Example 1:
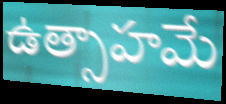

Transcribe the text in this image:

ఉత్సాహమే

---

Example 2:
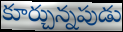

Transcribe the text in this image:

కూర్చున్నపుడు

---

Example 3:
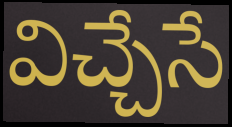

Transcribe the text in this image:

విచ్చేసే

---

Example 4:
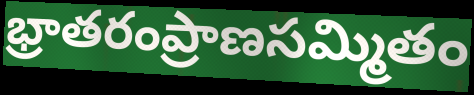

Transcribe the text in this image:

భ్రాతరంప్రాణసమ్మితం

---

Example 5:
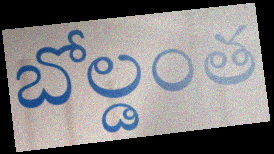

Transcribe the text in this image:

బోల్డంత